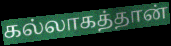
கல்லாகத்தான்